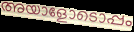
അയാളോടൊപ്പം